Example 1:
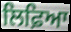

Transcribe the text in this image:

ਲਿਫ਼ਿਆ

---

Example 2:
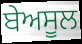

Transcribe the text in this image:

ਬੇਅਸੂਲ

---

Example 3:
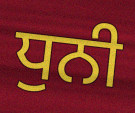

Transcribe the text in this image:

ਧੁਨੀ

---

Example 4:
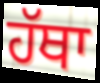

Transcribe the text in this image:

ਹੱਥਾ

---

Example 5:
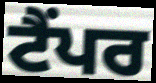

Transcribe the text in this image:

ਟੈਂਪਰ